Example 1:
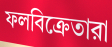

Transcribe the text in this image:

ফলবিক্রেতারা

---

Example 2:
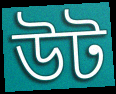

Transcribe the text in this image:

উট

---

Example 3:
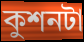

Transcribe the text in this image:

কুশনটা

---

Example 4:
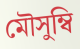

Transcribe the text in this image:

মৌসুম্বি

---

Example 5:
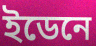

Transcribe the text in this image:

ইডেনে